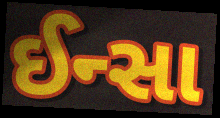
ઈન્સા